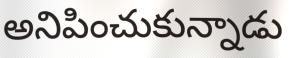
అనిపించుకున్నాడు